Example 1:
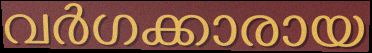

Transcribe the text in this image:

വർഗക്കാരായ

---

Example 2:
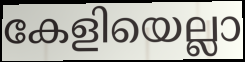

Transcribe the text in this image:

കേളിയെല്ലാ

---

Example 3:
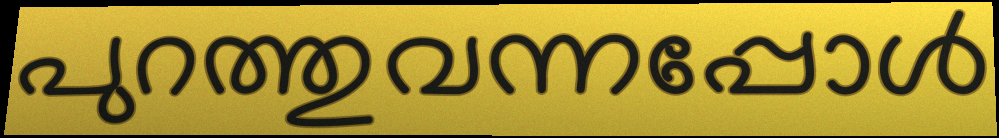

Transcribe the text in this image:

പുറത്തുവന്നപ്പോൾ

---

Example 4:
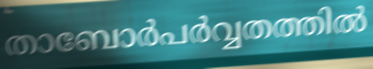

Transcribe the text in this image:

താബോർപർവ്വതത്തിൽ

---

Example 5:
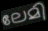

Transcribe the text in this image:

ലേമി